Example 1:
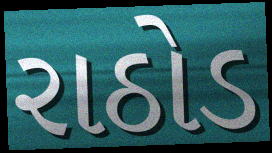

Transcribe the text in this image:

રાઠોડ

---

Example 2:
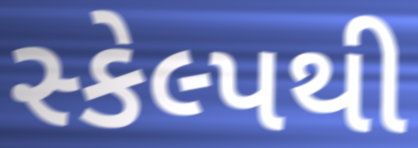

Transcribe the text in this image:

સ્કેલ્પથી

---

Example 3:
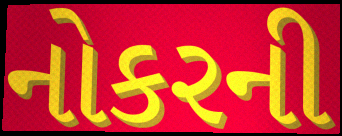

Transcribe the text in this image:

નોકરની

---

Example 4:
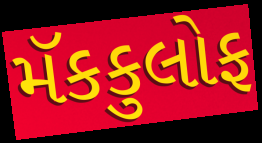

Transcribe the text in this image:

મૅકકુલોફ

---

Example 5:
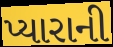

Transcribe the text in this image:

પ્યારાની